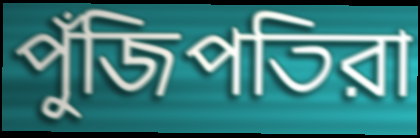
পুঁজিপতিরা